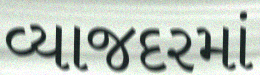
વ્યાજદરમાં